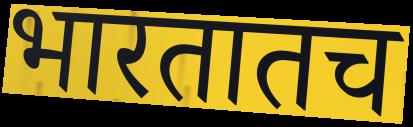
भारतातच